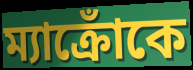
ম্যাক্রোঁকে